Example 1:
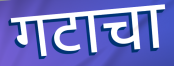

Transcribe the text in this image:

गटाचा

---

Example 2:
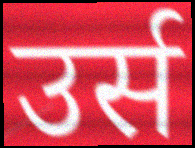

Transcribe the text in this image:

उर्स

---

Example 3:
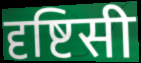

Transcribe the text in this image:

दृष्टिसी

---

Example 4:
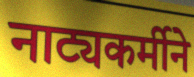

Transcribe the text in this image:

नाट्यकर्मीने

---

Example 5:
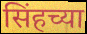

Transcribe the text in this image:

सिंहच्या